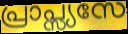
പ്രാപ്സ്യസേ